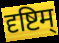
दृष्टिम्